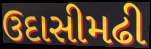
ઉદાસીમઢી